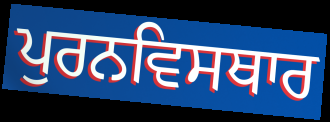
ਪੁਰਨਵਿਸਥਾਰ